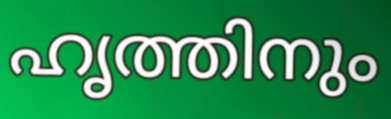
ഹൃത്തിനും